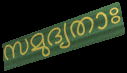
സമുദ്യതാഃ